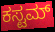
ಕಸ್ಟಮ್